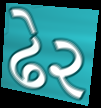
ઢેર